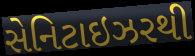
સેનિટાઇઝરથી